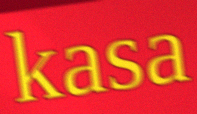
kasa